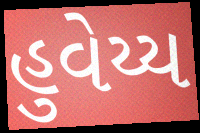
હુવેય્ય